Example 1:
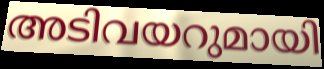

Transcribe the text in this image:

അടിവയറുമായി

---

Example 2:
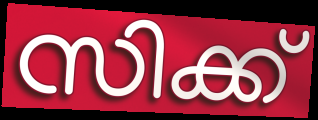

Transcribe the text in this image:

സിക്ക്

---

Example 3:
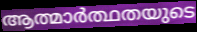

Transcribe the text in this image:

ആത്മാർത്ഥതയുടെ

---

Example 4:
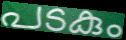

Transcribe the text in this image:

പടകും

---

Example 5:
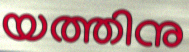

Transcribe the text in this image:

യത്തിനു